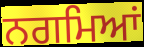
ਨਗਮਿਆਂ